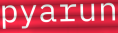
pyarun